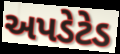
અપડેટેડ